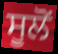
ਸੂਲੋਂ